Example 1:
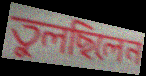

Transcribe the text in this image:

তুলছিলেন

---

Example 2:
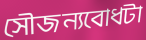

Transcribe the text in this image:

সৌজন্যবোধটা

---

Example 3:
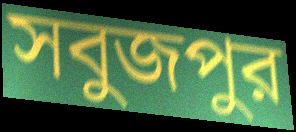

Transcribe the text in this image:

সবুজপুর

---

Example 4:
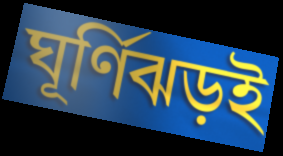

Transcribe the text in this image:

ঘূর্ণিঝড়ই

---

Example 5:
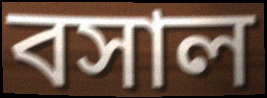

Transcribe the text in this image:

বসাল